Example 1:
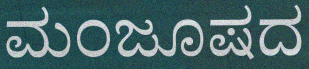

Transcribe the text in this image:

ಮಂಜೂಷದ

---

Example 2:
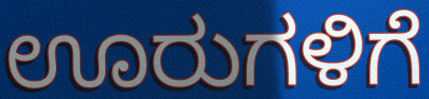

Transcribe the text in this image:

ಊರುಗಳಿಗೆ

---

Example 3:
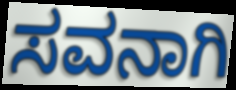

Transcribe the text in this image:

ಸವನಾಗಿ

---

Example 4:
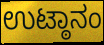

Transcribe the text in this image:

ಉಟ್ಠಾನಂ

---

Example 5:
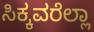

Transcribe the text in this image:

ಸಿಕ್ಕವರೆಲ್ಲಾ